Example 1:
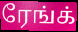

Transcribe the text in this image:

ரேங்க்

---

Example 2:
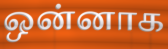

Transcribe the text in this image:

ஒன்னாக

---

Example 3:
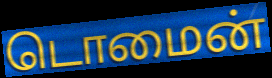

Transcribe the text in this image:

டொமைன்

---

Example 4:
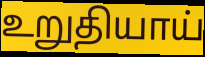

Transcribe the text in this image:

உறுதியாய்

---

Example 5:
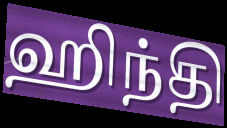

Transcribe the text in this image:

ஹிந்தி